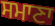
ਸਮਾਣਾ